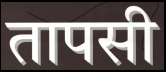
तापसी